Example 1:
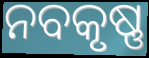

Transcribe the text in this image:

ନବକୃଷ୍ଣ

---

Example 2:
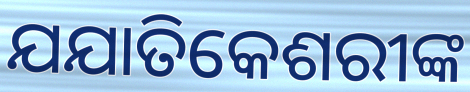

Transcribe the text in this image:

ଯଯାତିକେଶରୀଙ୍କ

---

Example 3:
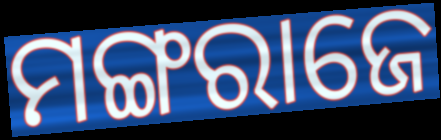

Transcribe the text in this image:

ମଙ୍ଗରାଜେ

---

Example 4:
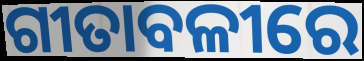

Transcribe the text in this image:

ଗୀତାବଳୀରେ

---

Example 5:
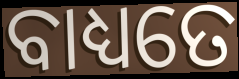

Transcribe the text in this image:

ବାଧ୍ଯତେ